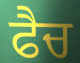
ਫੈਚ